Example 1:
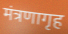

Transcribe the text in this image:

मंत्रणागृह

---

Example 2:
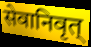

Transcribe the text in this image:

सेवानिवृत्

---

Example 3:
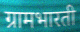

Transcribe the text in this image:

ग्रामभारती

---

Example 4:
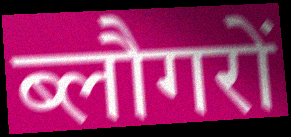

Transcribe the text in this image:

ब्लौगरों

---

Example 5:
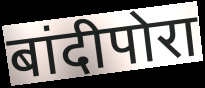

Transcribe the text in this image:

बांदीपोरा